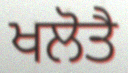
ਖਲੋਤੈ